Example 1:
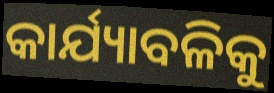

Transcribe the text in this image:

କାର୍ଯ୍ୟାବଳିକୁ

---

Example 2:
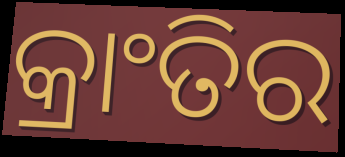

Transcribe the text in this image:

କ୍ରାଂତିର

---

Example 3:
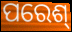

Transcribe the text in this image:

ପରେଶ୍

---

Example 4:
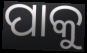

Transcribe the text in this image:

ପାକୁ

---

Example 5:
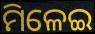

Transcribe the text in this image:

ମିଳେଇ